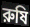
রুষি